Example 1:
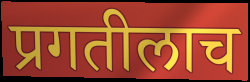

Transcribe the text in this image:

प्रगतीलाच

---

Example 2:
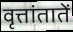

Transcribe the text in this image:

वृत्तांतातें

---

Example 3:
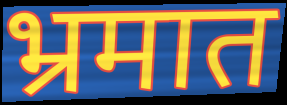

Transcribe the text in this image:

भ्रमात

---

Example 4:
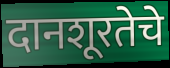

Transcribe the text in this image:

दानशूरतेचे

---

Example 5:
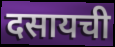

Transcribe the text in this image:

दसायची